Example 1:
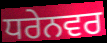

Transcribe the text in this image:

ਧਰੇਨਵਰ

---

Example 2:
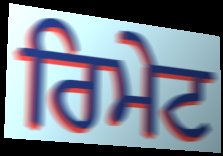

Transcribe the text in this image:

ਰਿਮੇਟ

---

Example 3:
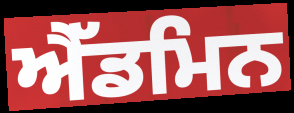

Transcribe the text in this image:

ਐੱਡਮਿਨ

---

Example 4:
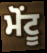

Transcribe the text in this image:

ਮੋਂਟੂ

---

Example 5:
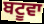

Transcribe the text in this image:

ਬਟੂਵਾ